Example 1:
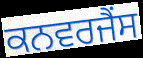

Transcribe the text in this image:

ਕਨਵਰਜੈਂਸ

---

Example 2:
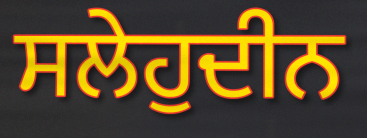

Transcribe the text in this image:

ਸਲੇਹੁਦੀਨ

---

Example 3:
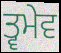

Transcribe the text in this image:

ਤ੍ਵਮੇਵ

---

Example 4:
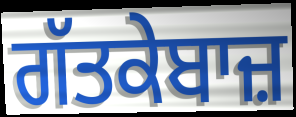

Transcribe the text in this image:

ਗੱਤਕੇਬਾਜ਼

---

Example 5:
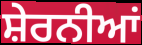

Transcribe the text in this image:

ਸ਼ੇਰਨੀਆਂ